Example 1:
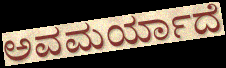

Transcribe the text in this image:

ಅವಮರ್ಯಾದೆ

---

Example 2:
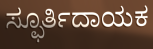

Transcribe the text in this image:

ಸ್ಫೂರ್ತಿದಾಯಕ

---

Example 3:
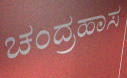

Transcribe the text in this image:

ಚಂದ್ರಹಾಸ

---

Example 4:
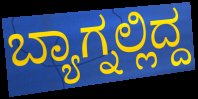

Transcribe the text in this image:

ಬ್ಯಾಗ್ನಲ್ಲಿದ್ದ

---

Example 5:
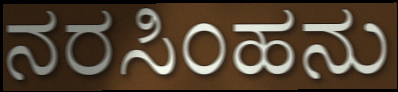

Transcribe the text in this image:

ನರಸಿಂಹನು